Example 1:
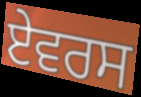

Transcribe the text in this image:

ਏਵਰਸ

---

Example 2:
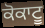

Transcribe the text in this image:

ਕੋਕਾਟੂ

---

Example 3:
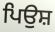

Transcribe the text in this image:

ਪਿਉਸ਼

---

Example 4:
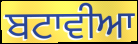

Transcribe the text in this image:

ਬਟਾਵੀਆ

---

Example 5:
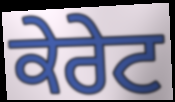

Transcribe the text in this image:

ਕੇਰੇਟ